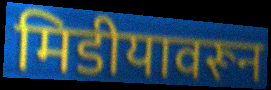
मिडीयावरून